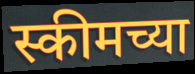
स्कीमच्या